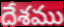
దేశము